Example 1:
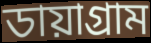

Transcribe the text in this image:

ডায়াগ্রাম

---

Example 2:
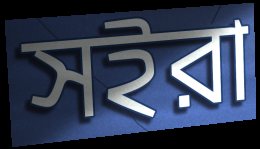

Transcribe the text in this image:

সইরা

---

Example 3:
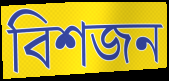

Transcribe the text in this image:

বিশজন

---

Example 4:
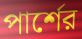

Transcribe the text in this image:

পার্শের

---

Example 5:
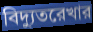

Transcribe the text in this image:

বিদ্যুতরেখার